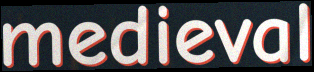
medieval